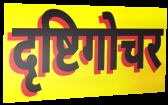
दृष्टिगोचर